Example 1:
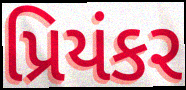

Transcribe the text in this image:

પ્રિયંકર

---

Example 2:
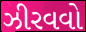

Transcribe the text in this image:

ઝીરવવો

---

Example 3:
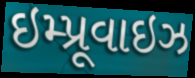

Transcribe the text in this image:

ઇમ્પ્રૂવાઇઝ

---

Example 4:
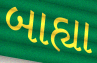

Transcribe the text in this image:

બાહ્યા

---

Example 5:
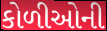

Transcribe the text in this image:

કોળીઓની